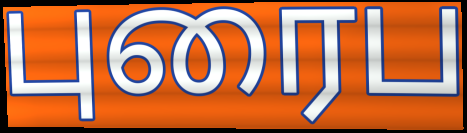
புரைப